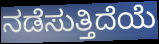
ನಡೆಸುತ್ತಿದೆಯೆ